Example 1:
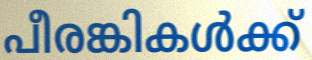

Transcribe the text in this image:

പീരങ്കികൾക്ക്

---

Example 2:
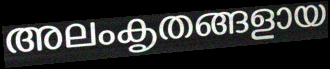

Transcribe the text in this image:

അലംകൃതങ്ങളായ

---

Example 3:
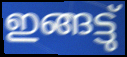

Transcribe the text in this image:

ഇങ്ങട്ടു്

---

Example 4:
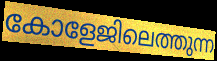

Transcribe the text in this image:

കോളേജിലെത്തുന്ന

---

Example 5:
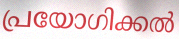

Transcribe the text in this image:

പ്രയോഗിക്കൽ